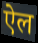
ऐल